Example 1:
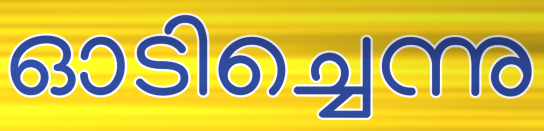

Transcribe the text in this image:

ഓടിച്ചെന്നു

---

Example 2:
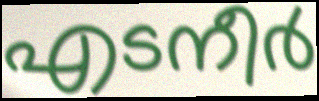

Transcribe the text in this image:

എടനീർ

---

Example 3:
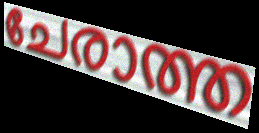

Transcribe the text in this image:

ചേരാത്ത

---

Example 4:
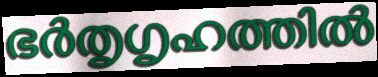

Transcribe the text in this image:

ഭർതൃഗൃഹത്തിൽ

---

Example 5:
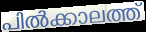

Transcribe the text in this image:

പിൽക്കാലത്ത്